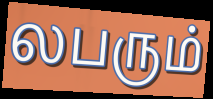
லபரும்